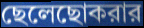
ছেলেছোকরার